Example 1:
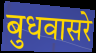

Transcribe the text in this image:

बुधवासरे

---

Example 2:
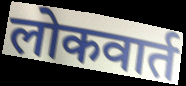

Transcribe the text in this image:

लोकवार्त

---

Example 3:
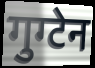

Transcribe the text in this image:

गुग्टेन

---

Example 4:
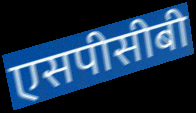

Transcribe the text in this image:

एसपीसीबी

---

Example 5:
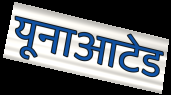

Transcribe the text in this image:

यूनाआटेड